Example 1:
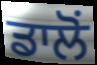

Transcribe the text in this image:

ਡਾਲੋਂ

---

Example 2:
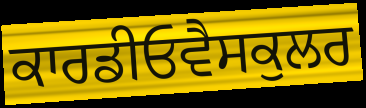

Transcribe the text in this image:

ਕਾਰਡੀਓਵੈਸਕੁਲਰ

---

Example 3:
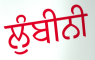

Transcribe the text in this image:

ਲੁੰਬੀਨੀ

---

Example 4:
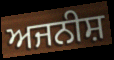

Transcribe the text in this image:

ਅਜਨੀਸ਼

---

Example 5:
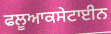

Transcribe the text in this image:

ਫਲੂਆਕਸੇਟਾਈਨ